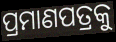
ପ୍ରମାଣପତ୍ରକୁ